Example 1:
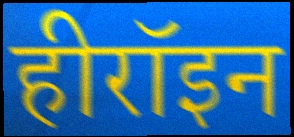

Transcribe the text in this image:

हीरॉइन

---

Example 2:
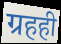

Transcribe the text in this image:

ग्रहही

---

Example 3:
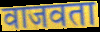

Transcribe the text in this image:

वाजवता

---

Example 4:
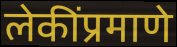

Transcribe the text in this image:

लेकींप्रमाणे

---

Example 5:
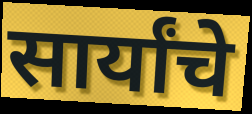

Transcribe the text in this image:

सार्यांचे